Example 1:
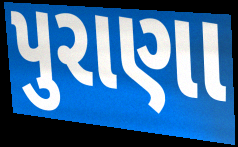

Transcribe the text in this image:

પુરાણા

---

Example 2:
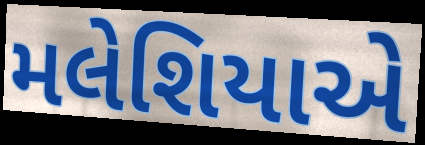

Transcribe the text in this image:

મલેશિયાએ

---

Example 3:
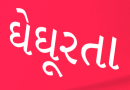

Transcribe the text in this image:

ઘેઘૂરતા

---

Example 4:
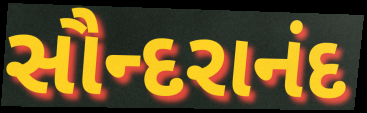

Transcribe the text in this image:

સૌન્દરાનંદ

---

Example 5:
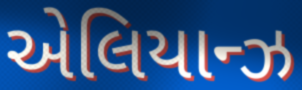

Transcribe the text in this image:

એલિયાન્ઝ